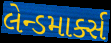
લેન્ડમાર્ક્સ